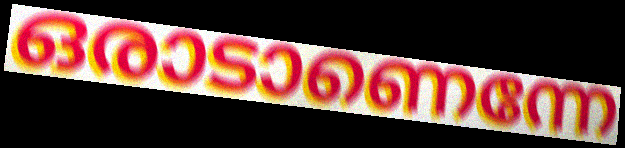
ഒരാടാണെന്നേ